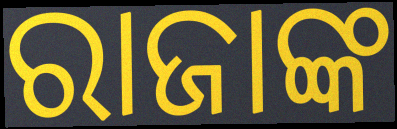
ରାଜାଙ୍କ